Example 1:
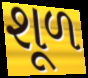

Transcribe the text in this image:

શૂળ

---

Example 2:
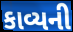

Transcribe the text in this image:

કાવ્યની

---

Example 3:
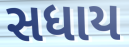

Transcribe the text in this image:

સધાય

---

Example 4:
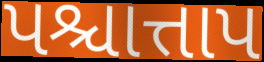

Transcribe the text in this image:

પશ્ચાત્તાપ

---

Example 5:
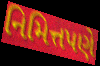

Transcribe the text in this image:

નિમિત્તપણે